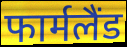
फार्मलैंड